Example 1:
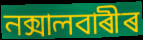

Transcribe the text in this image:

নক্সালবাৰীৰ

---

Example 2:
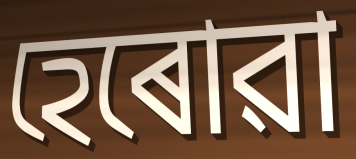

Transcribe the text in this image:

হেৰোৱা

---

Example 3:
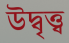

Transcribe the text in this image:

উদ্বৃত্ত্ব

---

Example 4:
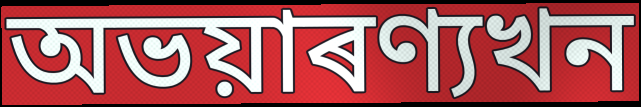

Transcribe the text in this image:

অভয়াৰণ্যখন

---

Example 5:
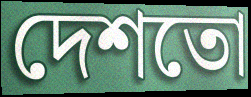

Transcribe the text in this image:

দেশতো